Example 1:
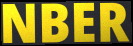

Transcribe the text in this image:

NBER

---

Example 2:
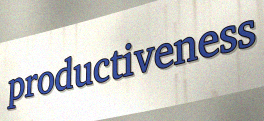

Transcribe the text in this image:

productiveness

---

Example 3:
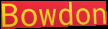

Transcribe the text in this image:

Bowdon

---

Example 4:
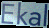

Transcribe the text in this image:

Ekal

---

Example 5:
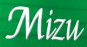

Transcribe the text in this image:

Mizu